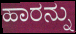
ಹಾರನ್ನು